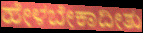
ಹೇಳಬೇಕಾದೀತು